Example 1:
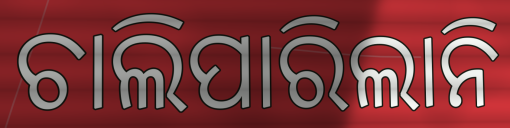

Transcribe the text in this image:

ଚାଲିପାରିଲାନି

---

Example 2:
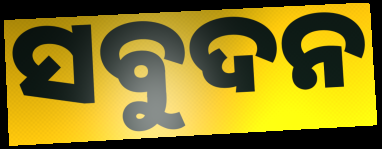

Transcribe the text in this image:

ସବୁଦନ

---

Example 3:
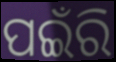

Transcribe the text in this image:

ପଇଁରି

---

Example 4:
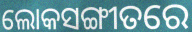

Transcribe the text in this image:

ଲୋକସଙ୍ଗୀତରେ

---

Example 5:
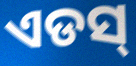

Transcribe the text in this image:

ଏଡସ୍